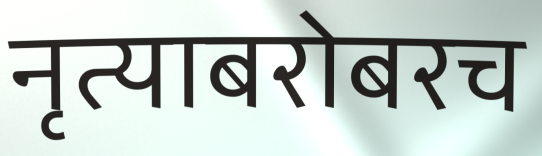
नृत्याबरोबरच